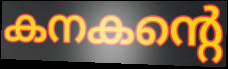
കനകന്റെ